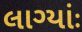
લાગ્યાંઃ